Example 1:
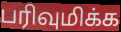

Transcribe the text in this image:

பரிவுமிக்க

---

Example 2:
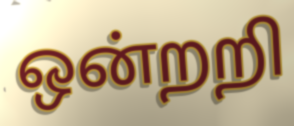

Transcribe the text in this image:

ஒன்றறி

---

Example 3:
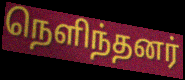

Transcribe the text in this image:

நெளிந்தனர்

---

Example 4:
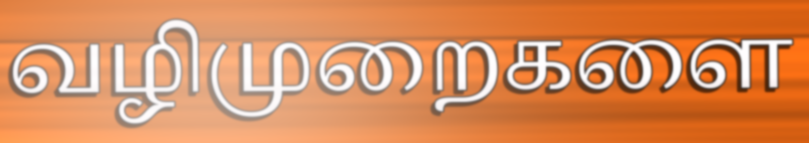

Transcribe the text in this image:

வழிமுறைகளை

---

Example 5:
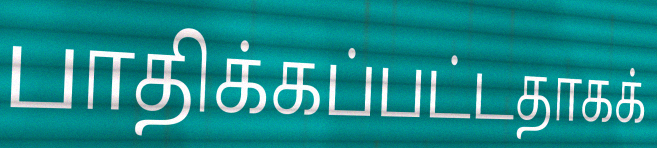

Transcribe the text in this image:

பாதிக்கப்பட்டதாகக்